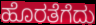
ಹೊರತೆಗೆದು